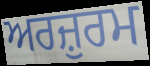
ਅਰਜ਼ੁਰਮ